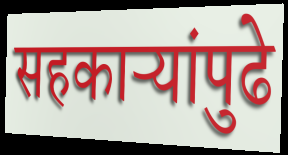
सहकाऱ्यांपुढे